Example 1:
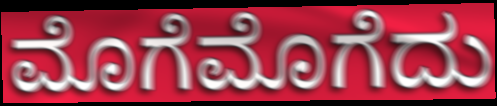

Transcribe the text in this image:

ಮೊಗೆಮೊಗೆದು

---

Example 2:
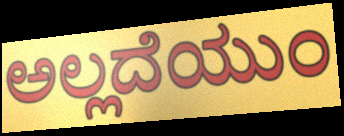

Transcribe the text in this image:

ಅಲ್ಲದೆಯುಂ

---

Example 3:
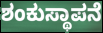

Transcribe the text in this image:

ಶಂಕುಸ್ಥಾಪನೆ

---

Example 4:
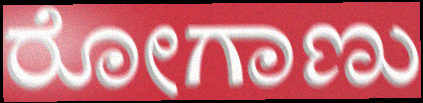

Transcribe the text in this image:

ರೋಗಾಣು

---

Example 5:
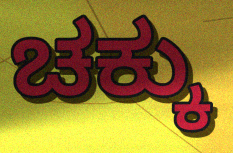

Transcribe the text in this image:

ಚಕ್ಕು